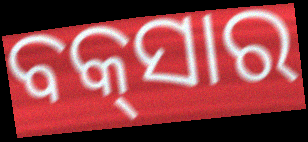
ବକ୍‌ସାର